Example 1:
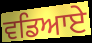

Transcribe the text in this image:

ਵਡਿਆਏ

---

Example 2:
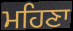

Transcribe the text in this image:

ਮਹਿਣਾ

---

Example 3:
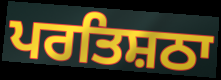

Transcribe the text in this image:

ਪਰਤਿਸ਼ਠਾ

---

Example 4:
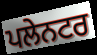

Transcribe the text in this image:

ਪਲੇਨਟਰ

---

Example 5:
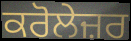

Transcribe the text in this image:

ਕਰੋਲੇਜ਼ਰ